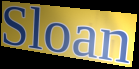
Sloan